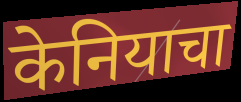
केनियाचा